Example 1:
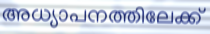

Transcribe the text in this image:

അധ്യാപനത്തിലേക്ക്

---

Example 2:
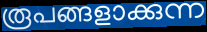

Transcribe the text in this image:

രൂപങ്ങളാക്കുന്ന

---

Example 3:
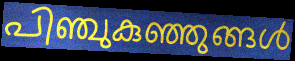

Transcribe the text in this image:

പിഞ്ചുകുഞ്ഞുങ്ങൾ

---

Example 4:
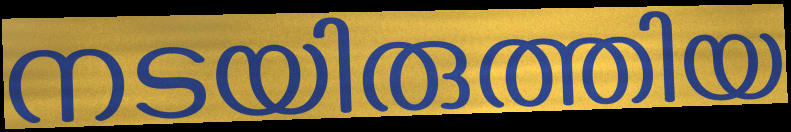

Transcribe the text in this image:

നടയിരുത്തിയ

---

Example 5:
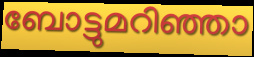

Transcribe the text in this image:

ബോട്ടുമറിഞ്ഞാ